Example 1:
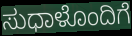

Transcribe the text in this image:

ಸುಧಾಳೊಂದಿಗೆ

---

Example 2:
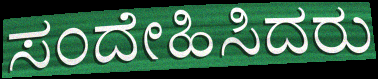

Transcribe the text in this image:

ಸಂದೇಹಿಸಿದರು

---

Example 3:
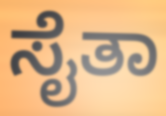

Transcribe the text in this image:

ಸೈತಾ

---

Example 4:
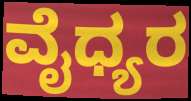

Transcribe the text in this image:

ವೈಧ್ಯರ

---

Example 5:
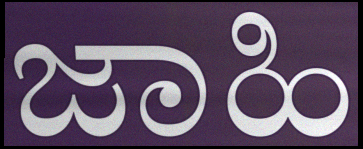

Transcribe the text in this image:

ಜಾಹಿ